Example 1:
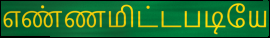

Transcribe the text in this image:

எண்ணமிட்டபடியே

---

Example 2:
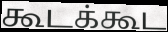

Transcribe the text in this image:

கூடக்கூட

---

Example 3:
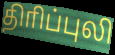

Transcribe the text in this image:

திரிப்புலி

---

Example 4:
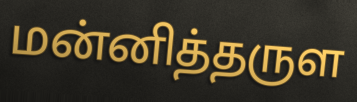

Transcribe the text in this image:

மன்னித்தருள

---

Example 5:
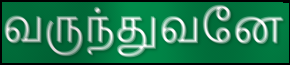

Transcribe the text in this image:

வருந்துவனே